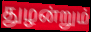
துழன்றும்